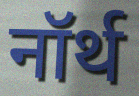
नॉर्थ